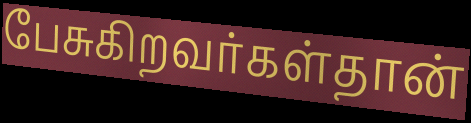
பேசுகிறவர்கள்தான்